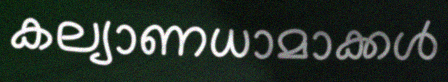
കല്യാണധാമാക്കൾ